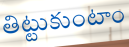
తిట్టుకుంటాం